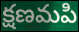
క్షణమపి